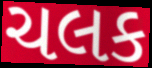
ચલક